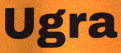
Ugra